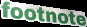
footnote